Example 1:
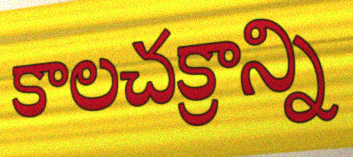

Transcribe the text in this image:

కాలచక్రాన్ని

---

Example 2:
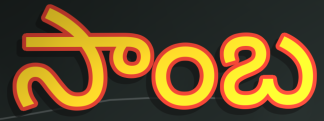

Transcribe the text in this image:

సాంబ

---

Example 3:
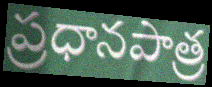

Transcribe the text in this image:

ప్రధానపాత్ర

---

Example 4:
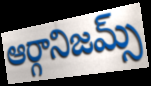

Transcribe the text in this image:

ఆర్గానిజమ్స్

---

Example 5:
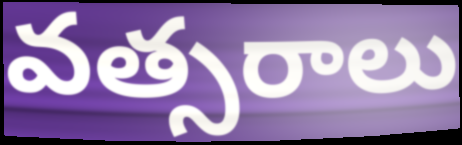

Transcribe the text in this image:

వత్సరాలు